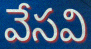
వేసవి